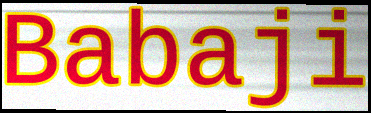
Babaji